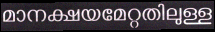
മാനക്ഷയമേറ്റതിലുള്ള